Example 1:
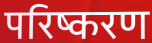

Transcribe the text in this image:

परिष्करण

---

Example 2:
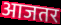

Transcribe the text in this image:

आजतर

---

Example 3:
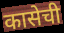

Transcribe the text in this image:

कासेची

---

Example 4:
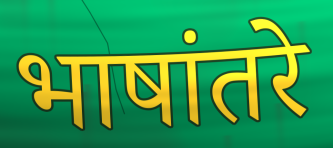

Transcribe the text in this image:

भाषांतरे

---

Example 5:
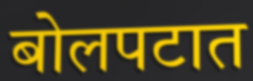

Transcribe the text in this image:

बोलपटात